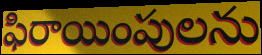
ఫిరాయింపులను